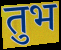
तुभ